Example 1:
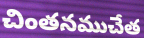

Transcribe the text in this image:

చింతనముచేత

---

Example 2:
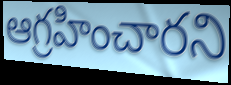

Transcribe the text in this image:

ఆగ్రహించారని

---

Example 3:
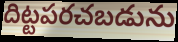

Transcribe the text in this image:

దిట్టపరచబడును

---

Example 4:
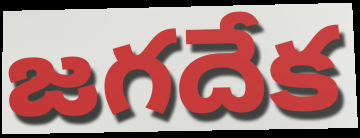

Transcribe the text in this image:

జగదేక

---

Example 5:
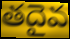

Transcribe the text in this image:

తదైవ